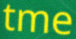
tme